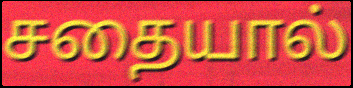
சதையால்